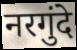
नरगुंदे